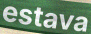
estava